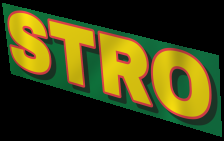
STRO